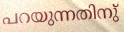
പറയുന്നതിനു്